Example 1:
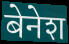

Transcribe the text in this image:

बेनेश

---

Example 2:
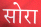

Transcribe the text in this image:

सोरा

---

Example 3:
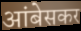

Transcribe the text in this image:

आंबेसकर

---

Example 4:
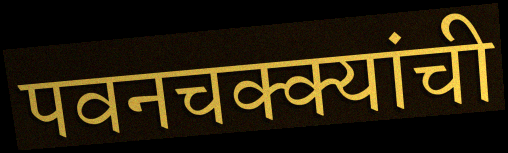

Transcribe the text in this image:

पवनचक्क्यांची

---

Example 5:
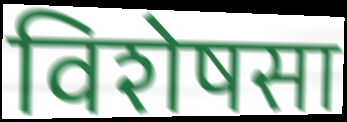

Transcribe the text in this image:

विशेषसा